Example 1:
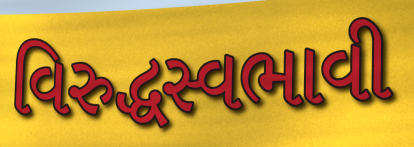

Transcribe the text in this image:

વિરુદ્ધસ્વભાવી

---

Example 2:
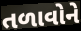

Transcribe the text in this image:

તળાવોને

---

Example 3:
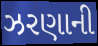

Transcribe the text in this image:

ઝરણાની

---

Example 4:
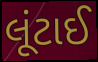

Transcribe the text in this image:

લૂંટાઈ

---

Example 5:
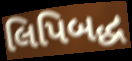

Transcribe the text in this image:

લિપિબદ્ધ